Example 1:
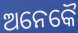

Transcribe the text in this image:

ଅନେକୈ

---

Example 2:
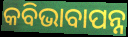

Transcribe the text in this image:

କବିଭାବାପନ୍ନ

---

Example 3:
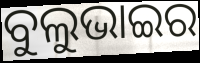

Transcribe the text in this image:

ବୁଲୁଭାଇର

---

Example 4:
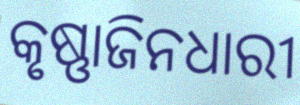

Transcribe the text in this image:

କୃଷ୍ଣାଜିନଧାରୀ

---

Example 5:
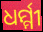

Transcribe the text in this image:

ଧର୍ମ୍ମୀ